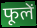
फूलें